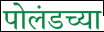
पोलंडच्या